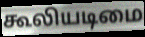
கூலியடிமை